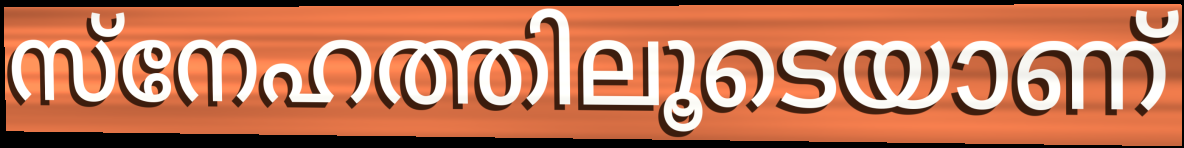
സ്നേഹത്തിലൂടെയാണ്